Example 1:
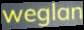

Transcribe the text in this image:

weglan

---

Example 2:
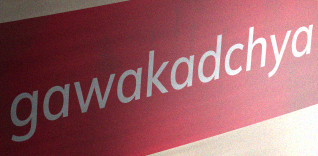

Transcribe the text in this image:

gawakadchya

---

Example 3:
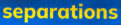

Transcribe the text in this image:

separations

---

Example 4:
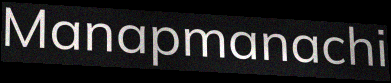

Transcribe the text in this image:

Manapmanachi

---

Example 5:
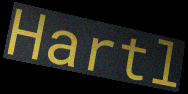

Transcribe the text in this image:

Hartl